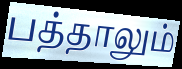
பத்தாலும்